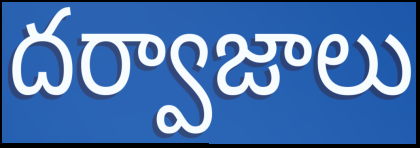
దర్వాజాలు